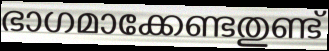
ഭാഗമാക്കേണ്ടതുണ്ട്